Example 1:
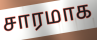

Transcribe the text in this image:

சாரமாக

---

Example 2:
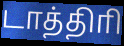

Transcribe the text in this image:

டாத்திரி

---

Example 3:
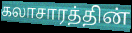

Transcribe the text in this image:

கலாசாரத்தின்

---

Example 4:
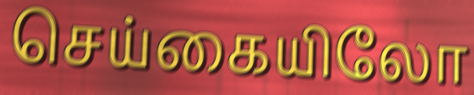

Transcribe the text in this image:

செய்கையிலோ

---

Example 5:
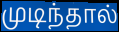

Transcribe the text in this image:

முடிந்தால்